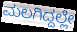
ಮಲಗಿದ್ದಲ್ಲೇ